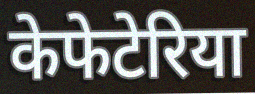
केफेटेरिया